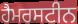
ਹੈਮਰਸਟੀਨ